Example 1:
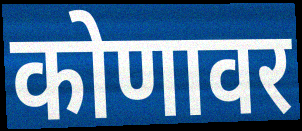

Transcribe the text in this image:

कोणावर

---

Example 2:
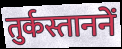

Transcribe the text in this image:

तुर्कस्ताननें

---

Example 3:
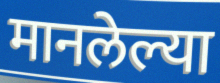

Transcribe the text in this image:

मानलेल्या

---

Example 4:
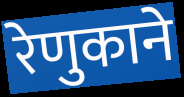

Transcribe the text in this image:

रेणुकाने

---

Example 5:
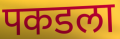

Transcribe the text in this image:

पकडला